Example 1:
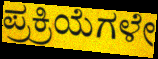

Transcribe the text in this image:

ಪ್ರಕ್ರಿಯೆಗಳೇ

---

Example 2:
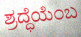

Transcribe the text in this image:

ಶ್ರದ್ಧೆಯೆಂಬ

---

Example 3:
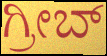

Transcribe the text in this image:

ಗ್ರೀಬ್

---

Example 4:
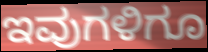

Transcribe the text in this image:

ಇವುಗಳಿಗೂ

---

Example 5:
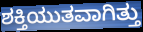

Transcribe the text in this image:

ಶಕ್ತಿಯುತವಾಗಿತ್ತು